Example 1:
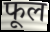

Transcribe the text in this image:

फूल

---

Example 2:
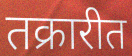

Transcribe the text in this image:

तक्रारीत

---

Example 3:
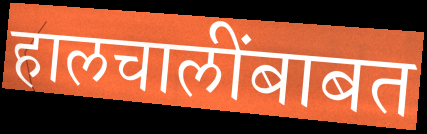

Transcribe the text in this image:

हालचालींबाबत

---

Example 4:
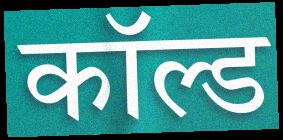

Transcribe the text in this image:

कॉल्ड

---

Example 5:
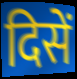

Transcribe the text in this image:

दिसें